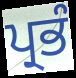
ਪ੍ਰਭੰ